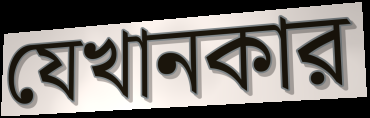
যেখানকার